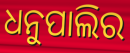
ଧନୁପାଲିର